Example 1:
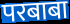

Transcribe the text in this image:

परबाबा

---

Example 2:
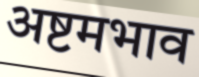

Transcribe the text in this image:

अष्टमभाव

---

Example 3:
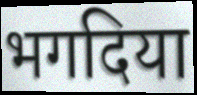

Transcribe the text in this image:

भगदिया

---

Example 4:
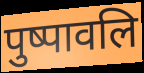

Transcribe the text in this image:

पुष्पावलि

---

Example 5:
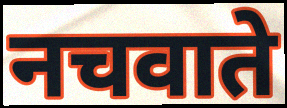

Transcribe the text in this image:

नचवाते